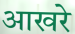
आखरे